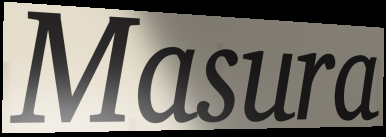
Masura